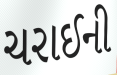
ચરાઈની